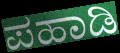
ಪಹಾಡಿ